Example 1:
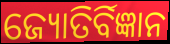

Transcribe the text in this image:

ଜ୍ୟୋତିର୍ବିଜ୍ଞାନ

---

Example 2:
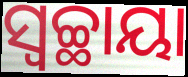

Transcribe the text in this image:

ସ୍ୱଚ୍ଛାୟା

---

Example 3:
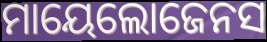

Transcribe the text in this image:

ମାୟେଲୋଜେନସ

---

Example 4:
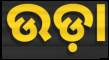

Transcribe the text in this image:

ଉଡ଼ା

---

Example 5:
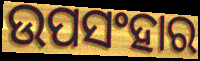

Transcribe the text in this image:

ଉପସଂହାର